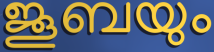
ജൂബയും